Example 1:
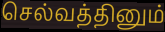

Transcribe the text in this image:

செல்வத்தினும்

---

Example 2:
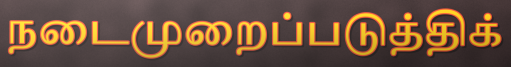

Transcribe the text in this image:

நடைமுறைப்படுத்திக்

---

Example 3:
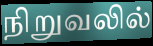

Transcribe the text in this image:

நிறுவலில்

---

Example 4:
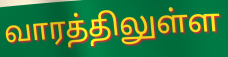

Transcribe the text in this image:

வாரத்திலுள்ள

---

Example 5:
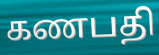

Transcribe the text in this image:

கணபதி